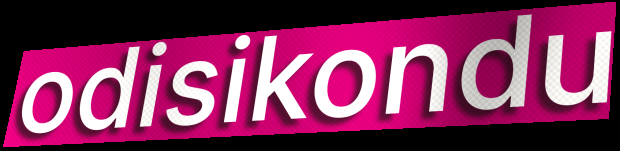
odisikondu